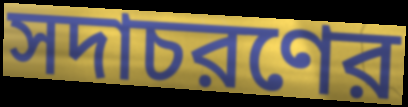
সদাচরণের